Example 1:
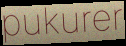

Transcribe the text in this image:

pukurer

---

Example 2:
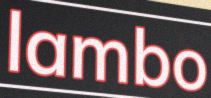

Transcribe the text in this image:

lambo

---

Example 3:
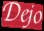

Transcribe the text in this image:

Dejo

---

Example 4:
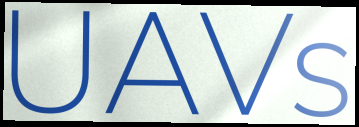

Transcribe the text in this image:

UAVs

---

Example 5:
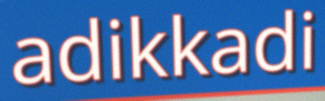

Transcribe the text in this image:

adikkadi